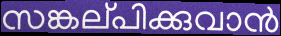
സങ്കല്‌പിക്കുവാൻ